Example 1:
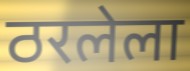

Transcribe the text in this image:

ठरलेला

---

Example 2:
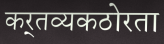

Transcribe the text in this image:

कर्तव्यकठोरता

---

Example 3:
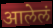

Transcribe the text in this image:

आलेलं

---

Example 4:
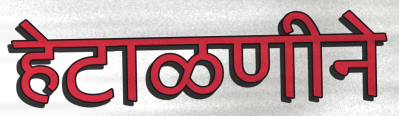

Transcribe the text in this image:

हेटाळणीने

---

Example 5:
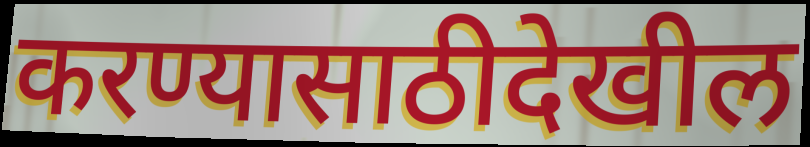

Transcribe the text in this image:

करण्यासाठीदेखील